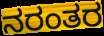
ನರಂತರ